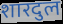
शारदुल